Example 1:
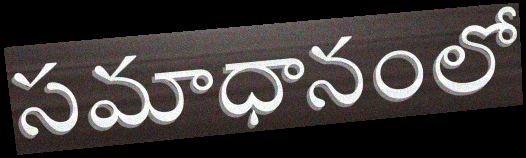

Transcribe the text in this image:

సమాధానంలో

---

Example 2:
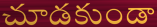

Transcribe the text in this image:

చూడకుండా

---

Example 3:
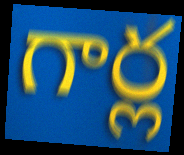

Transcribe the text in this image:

గార్ల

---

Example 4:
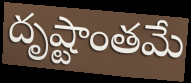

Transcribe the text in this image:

దృష్టాంతమే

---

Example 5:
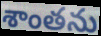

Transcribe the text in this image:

శాంతను